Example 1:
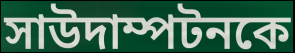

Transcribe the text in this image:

সাউদাম্পটনকে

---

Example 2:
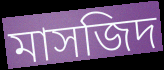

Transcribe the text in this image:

মাসজিদ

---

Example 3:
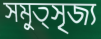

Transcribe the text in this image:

সমুত্সৃজ্য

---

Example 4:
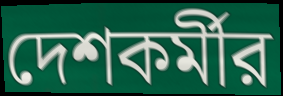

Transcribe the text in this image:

দেশকর্মীর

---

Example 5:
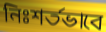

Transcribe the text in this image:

নিঃশর্তভাবে